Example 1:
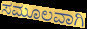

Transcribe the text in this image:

ಸಮೂಲವಾಗಿ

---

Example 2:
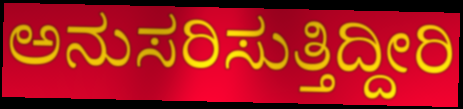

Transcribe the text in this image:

ಅನುಸರಿಸುತ್ತಿದ್ದೀರಿ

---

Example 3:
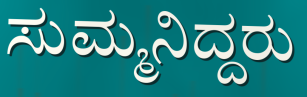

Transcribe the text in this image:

ಸುಮ್ಮನಿದ್ದರು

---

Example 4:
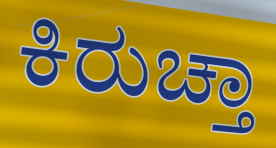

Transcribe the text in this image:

ಕಿರುಚ್ತಾ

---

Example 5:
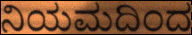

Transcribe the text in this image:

ನಿಯಮದಿಂದ